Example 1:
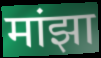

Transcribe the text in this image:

मांझा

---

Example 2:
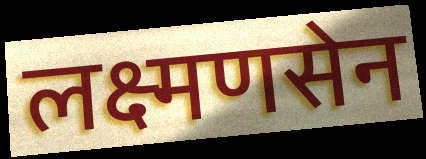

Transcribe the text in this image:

लक्ष्मणसेन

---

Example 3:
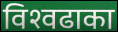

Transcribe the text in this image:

विश्वढाका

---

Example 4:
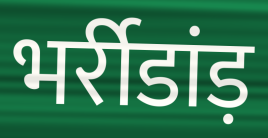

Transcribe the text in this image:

भर्रीडांड़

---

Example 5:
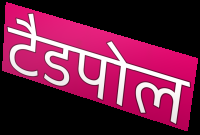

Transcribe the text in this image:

टैडपोल